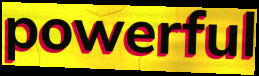
powerful